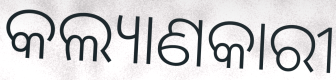
କଲ୍ୟାଣକାରୀ